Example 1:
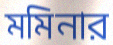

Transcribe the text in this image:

মমিনার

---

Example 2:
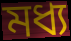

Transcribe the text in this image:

মধ্য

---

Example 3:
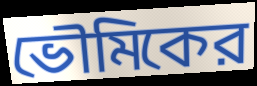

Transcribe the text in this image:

ভৌমিকের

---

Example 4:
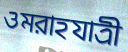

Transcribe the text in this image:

ওমরাহযাত্রী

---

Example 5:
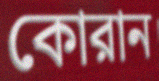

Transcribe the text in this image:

কোরান